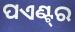
ପଏଣ୍ଟ୍‌ର